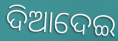
ଦିଆଦେଇ